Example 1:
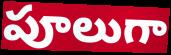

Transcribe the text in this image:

పూలుగా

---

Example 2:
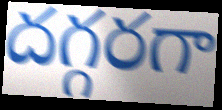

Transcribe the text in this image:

దగ్గరగా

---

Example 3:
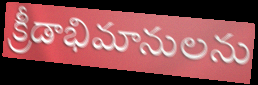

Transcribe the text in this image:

క్రీడాభిమానులను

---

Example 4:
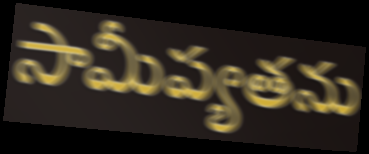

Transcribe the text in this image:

సామీప్యతను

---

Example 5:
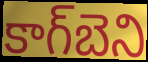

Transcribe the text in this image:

కాగ్‌బెని